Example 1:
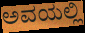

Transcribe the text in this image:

ಅವಯಲ್ಲಿ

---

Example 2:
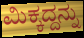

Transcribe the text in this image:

ಮಿಕ್ಕದ್ದನ್ನು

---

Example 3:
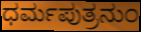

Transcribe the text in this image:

ಧರ್ಮಪುತ್ರನುಂ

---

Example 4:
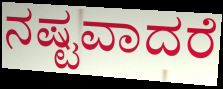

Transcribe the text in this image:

ನಷ್ಟವಾದರೆ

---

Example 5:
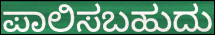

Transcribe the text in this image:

ಪಾಲಿಸಬಹುದು